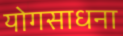
योगसाधना